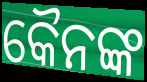
କୈନଙ୍କ